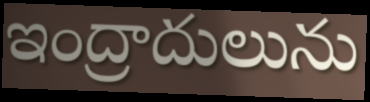
ఇంద్రాదులును